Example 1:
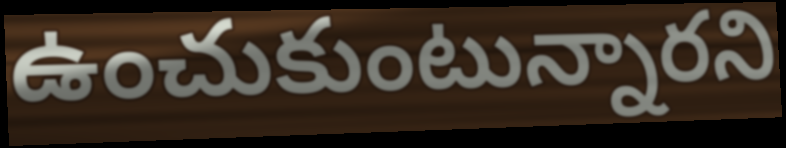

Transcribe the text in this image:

ఉంచుకుంటున్నారని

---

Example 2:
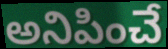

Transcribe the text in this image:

అనిపించే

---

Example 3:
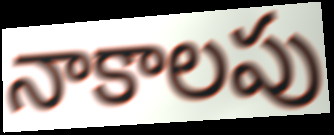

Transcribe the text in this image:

నాకాలపు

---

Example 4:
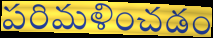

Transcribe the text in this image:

పరిమళించడం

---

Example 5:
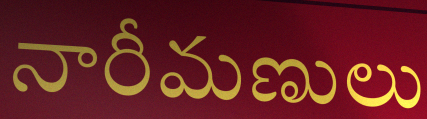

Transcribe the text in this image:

నారీమణులు